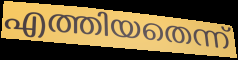
എത്തിയതെന്ന്